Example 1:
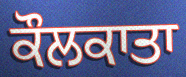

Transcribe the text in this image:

ਕੌਲਕਾਤਾ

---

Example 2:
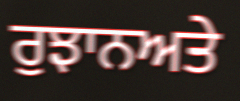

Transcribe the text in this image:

ਰੁਝਾਨਅਤੇ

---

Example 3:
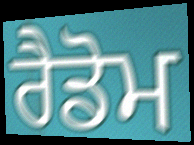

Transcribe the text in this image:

ਰੈਡੋਮ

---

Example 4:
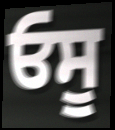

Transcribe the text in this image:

ਓਸੂ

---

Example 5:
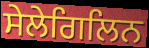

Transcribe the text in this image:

ਸੇਲੇਗਿਲਿਨ